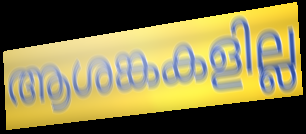
ആശങ്കകളില്ല